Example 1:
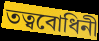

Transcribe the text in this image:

তত্ববোধিনী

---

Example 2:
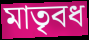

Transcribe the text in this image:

মাতৃবধ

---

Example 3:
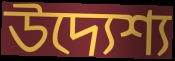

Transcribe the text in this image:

উদ্যেশ্য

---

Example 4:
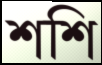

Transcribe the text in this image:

শশি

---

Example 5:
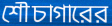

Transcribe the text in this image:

শৌচাগারের